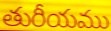
తురీయము